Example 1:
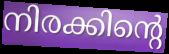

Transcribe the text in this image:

നിരക്കിന്റെ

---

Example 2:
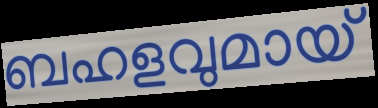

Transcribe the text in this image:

ബഹളവുമായ്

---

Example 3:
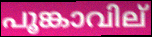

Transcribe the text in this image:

പൂങ്കാവില്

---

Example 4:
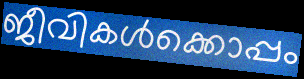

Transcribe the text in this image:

ജീവികൾക്കൊപ്പം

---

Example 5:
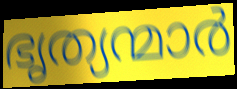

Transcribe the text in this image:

ഭൃത്യന്മാർ